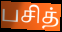
பசித்